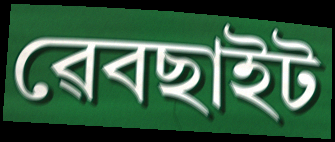
ৱেবছাইট